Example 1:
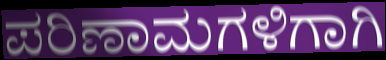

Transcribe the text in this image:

ಪರಿಣಾಮಗಳಿಗಾಗಿ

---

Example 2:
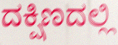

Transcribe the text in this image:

ದಕ್ಷಿಣದಲ್ಲಿ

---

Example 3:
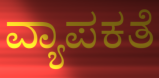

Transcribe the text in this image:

ವ್ಯಾಪಕತೆ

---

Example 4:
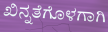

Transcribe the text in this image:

ಖಿನ್ನತೆಗೊಳಗಾಗಿ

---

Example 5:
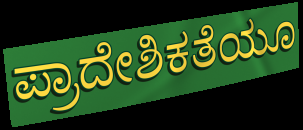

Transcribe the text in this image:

ಪ್ರಾದೇಶಿಕತೆಯೂ